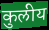
कुलीय